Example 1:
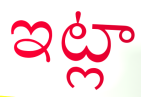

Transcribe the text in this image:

ఇట్లా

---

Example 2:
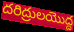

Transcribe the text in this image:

దరిద్రులయొద్ద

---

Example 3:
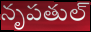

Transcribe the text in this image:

నృపతుల్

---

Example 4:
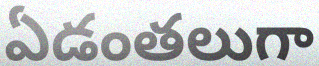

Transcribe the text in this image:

ఏడంతలుగా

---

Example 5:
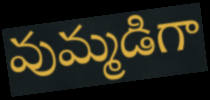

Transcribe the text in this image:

వుమ్మడిగా